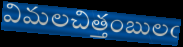
విమలచిత్తంబులఁ